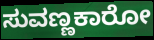
ಸುವಣ್ಣಕಾರೋ